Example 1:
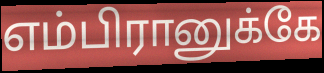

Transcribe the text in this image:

எம்பிரானுக்கே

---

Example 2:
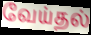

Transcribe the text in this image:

வேய்தல்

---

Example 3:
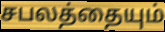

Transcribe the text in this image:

சபலத்தையும்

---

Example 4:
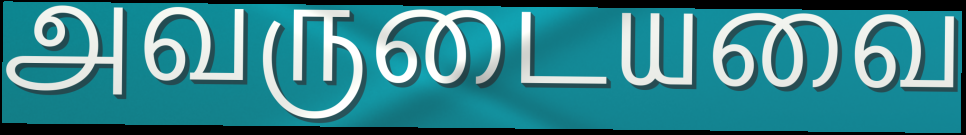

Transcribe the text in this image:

அவருடையவை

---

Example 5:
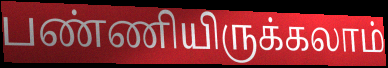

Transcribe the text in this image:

பண்ணியிருக்கலாம்